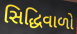
સિદ્ધિવાળો